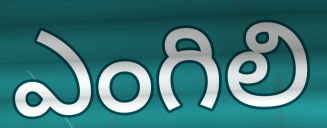
ఎంగిలి